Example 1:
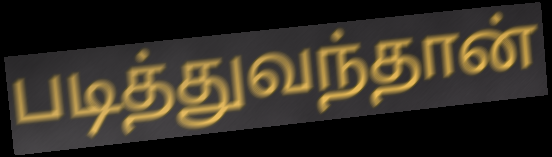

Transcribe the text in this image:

படித்துவந்தான்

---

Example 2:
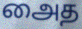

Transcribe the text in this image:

அைத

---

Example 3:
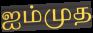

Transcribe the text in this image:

ஐம்முத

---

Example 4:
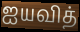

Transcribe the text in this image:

ஐயவித்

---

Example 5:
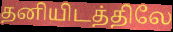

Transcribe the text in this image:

தனியிடத்திலே